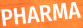
PHARMA